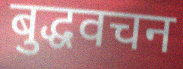
बुद्धवचन